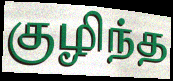
குழிந்த